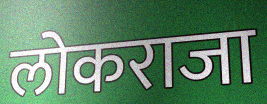
लोकराजा